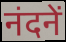
नंदनें